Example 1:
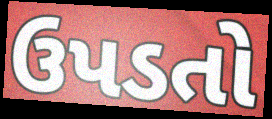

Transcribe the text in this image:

ઉપડતો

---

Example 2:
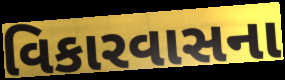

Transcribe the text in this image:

વિકારવાસના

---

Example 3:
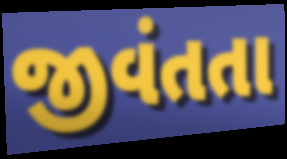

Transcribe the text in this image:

જીવંતતા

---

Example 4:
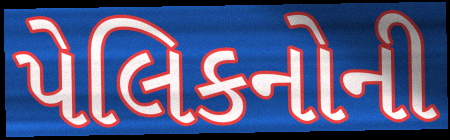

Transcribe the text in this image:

પેલિકનોની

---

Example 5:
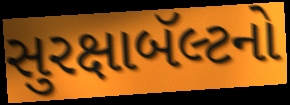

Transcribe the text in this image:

સુરક્ષાબૅલ્ટનો